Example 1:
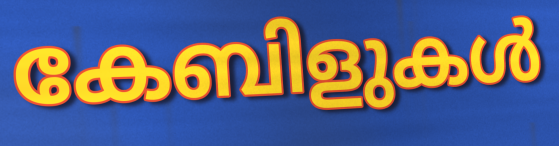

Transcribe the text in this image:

കേബിളുകൾ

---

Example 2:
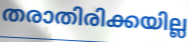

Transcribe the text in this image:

തരാതിരിക്കയില്ല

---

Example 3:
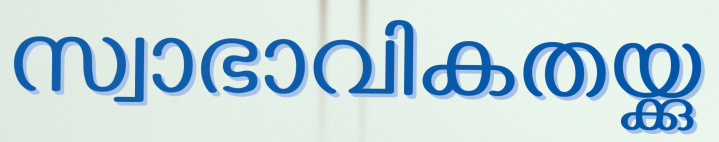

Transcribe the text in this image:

സ്വാഭാവികതയ്ക്കു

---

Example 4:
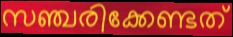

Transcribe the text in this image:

സഞ്ചരിക്കേണ്ടത്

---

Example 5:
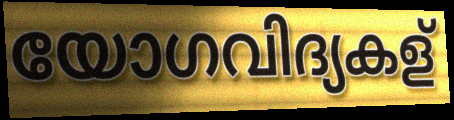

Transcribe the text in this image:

യോഗവിദ്യകള്